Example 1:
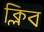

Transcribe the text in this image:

ক্লিব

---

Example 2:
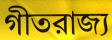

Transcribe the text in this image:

গীতরাজ্য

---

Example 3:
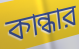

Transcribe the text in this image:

কান্ধার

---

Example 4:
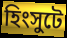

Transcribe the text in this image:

হিংসুটে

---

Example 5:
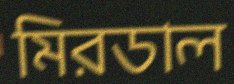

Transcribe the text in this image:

মিরডাল